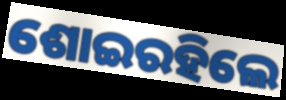
ଶୋଇରହିଲେ